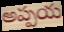
అప్పయ